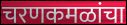
चरणकमळांचा